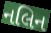
નલિન